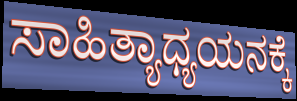
ಸಾಹಿತ್ಯಾಧ್ಯಯನಕ್ಕೆ